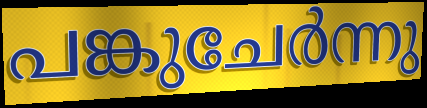
പങ്കുചേർന്നു